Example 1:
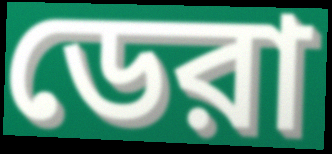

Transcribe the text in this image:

ডেরা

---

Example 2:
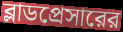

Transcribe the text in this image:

ব্লাডপ্রেসারের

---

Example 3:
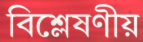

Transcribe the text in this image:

বিশ্লেষণীয়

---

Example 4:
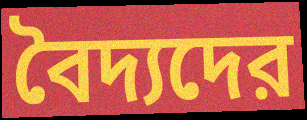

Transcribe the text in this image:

বৈদ্যদের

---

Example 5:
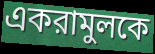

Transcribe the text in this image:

একরামুলকে